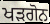
ਖੜਗੋਨ